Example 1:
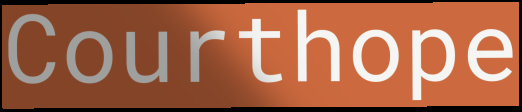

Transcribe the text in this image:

Courthope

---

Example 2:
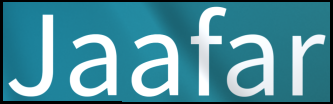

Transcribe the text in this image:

Jaafar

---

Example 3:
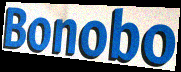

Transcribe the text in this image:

Bonobo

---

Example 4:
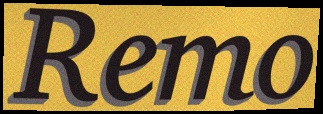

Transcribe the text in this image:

Remo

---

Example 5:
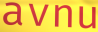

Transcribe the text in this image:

avnu